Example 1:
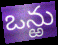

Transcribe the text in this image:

ఒన్ఱు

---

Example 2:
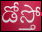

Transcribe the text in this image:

డోస్తో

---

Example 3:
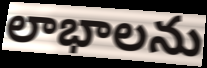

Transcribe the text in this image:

లాభాలను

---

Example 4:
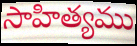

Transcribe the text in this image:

సాహిత్యము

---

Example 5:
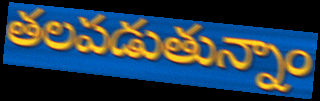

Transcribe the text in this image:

తలపడుతున్నాం